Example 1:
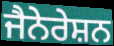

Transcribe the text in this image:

ਜੈਨੇਰੇਸ਼ਨ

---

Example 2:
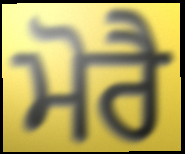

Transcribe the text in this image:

ਮੋਰੈ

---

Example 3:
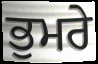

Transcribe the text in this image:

ਭੁਮਰੇ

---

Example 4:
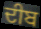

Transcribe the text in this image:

ਦੀਬ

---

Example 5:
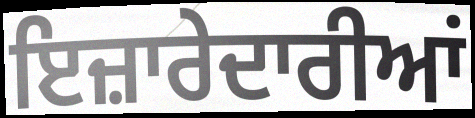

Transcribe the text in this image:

ਇਜ਼ਾਰੇਦਾਰੀਆਂ